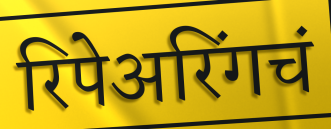
रिपेअरिंगचं